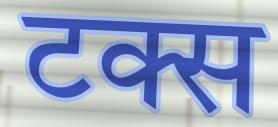
टक्स